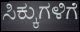
ಸಿಕ್ಕುಗಳಿಗೆ